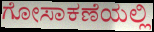
ಗೋಸಾಕಣೆಯಲ್ಲಿ